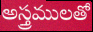
అస్త్రములతో